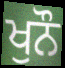
ਖੁਨੌ